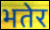
भतेर